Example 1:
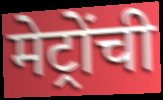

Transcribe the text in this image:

मेट्रोंची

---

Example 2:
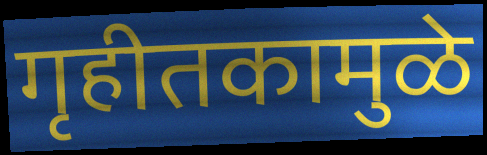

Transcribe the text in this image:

गृहीतकामुळे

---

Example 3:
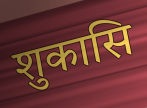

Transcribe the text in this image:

शुकासि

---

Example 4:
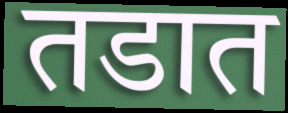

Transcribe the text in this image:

तडात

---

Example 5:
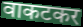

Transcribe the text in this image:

वाकटकर